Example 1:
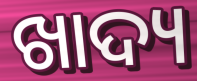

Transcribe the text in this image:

ଖାଦ୍ୟ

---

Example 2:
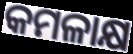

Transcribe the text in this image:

କମଳାକ୍ଷ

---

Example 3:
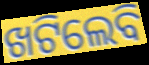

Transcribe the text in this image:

ଖଟିଲେବି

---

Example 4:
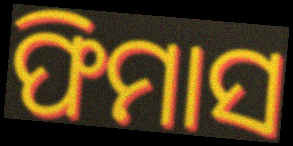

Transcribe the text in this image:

ଫିମାସ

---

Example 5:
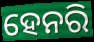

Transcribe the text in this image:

ହେନରି